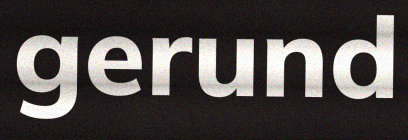
gerund